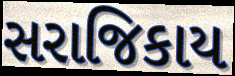
સરાજિકાય